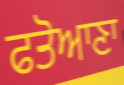
ਫਤੋਆਣਾ